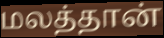
மலத்தான்